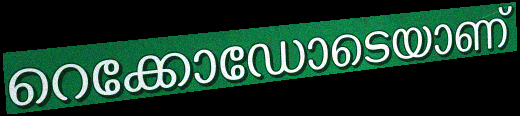
റെക്കോഡോടെയാണ്